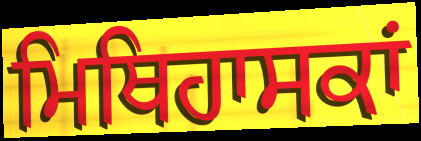
ਮਿਥਿਹਾਸਕਾਂ